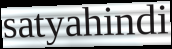
satyahindi